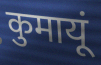
कुमायूं